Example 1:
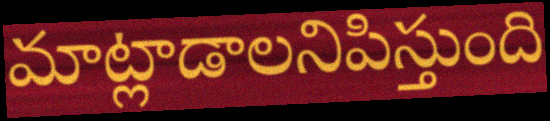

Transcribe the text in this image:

మాట్లాడాలనిపిస్తుంది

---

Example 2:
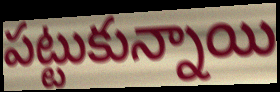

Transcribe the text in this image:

పట్టుకున్నాయి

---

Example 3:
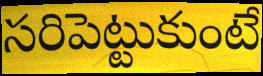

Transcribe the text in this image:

సరిపెట్టుకుంటే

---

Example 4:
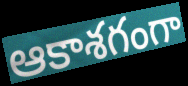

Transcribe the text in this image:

ఆకాశగంగా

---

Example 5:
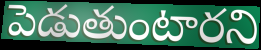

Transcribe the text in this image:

పెడుతుంటారని